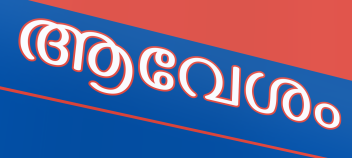
ആവേശം